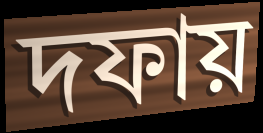
দফায়